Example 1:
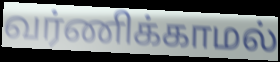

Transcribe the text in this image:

வர்ணிக்காமல்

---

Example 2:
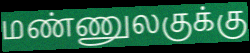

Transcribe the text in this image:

மண்ணுலகுக்கு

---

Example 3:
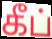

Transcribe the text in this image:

கீப்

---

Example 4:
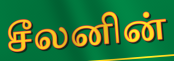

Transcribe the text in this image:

சீலனின்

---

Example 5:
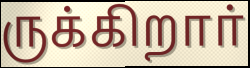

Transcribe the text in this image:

ருக்கிறார்